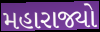
મહારાજ્યો